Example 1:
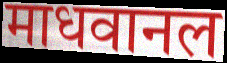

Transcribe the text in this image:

माधवानल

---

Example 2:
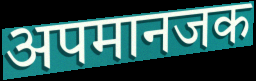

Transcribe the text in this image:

अपमानजक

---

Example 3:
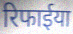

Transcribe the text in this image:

रिफाईया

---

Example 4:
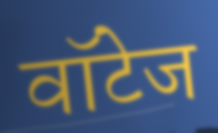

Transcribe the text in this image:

वॉटेज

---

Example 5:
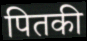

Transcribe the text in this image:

पितकी